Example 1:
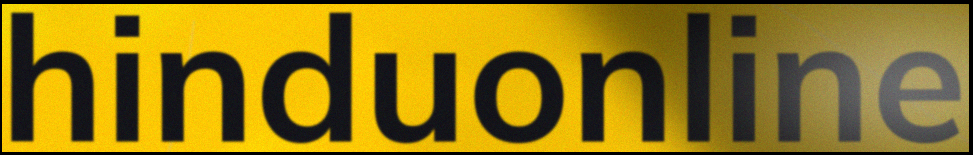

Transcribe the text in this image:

hinduonline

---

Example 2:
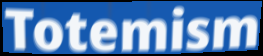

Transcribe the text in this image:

Totemism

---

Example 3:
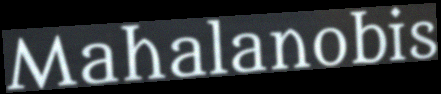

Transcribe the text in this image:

Mahalanobis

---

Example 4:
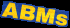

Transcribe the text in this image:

ABMs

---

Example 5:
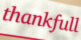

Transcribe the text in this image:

thankfull